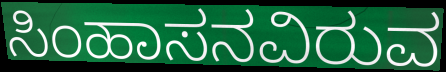
ಸಿಂಹಾಸನವಿರುವ